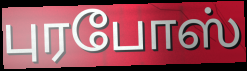
புரபோஸ்